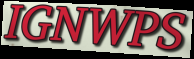
IGNWPS